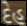
દેહ